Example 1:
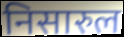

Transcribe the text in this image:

निसारुल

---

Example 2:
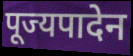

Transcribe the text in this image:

पूज्यपादेन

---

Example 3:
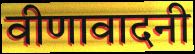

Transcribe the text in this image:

वीणावादनी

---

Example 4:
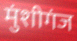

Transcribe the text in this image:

मुंशीगंज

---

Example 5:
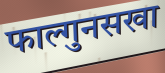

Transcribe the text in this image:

फाल्गुनसखा